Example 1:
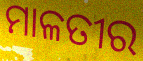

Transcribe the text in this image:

ମାଳତୀର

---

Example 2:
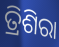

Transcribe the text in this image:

ତ୍ରିଶିରା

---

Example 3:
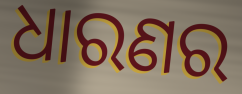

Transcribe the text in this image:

ଧାରଣର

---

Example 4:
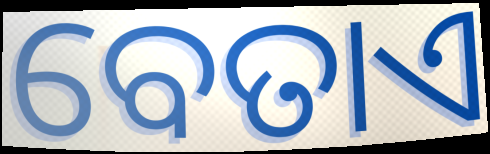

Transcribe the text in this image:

ବେତାଏ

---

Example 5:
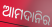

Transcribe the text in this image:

ଆମଦାନିର